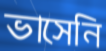
ভাসেনি